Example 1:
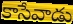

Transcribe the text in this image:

కాసేవాడు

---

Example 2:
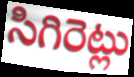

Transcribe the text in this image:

సిగిరెట్లు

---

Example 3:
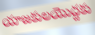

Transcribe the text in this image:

యాజకులయొద్దకు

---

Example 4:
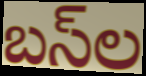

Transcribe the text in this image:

బస్‌ల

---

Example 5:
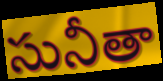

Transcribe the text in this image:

సునీతా